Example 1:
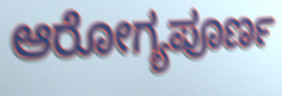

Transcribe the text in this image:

ಆರೋಗ್ಯಪೂರ್ಣ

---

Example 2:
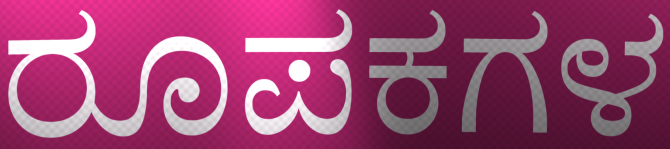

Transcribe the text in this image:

ರೂಪಕಗಳ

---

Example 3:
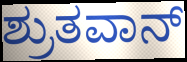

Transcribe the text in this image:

ಶ್ರುತವಾನ್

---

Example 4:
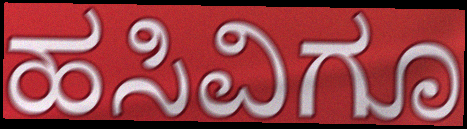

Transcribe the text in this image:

ಹಸಿವಿಗೂ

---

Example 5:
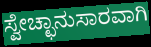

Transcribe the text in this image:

ಸ್ವೇಚ್ಛಾನುಸಾರವಾಗಿ